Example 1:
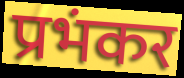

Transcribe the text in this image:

प्रभंकर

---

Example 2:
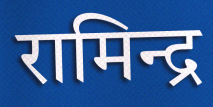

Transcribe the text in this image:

रामिन्द्र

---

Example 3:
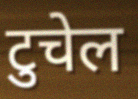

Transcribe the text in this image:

टुचेल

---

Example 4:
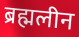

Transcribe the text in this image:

ब्रह्मलीन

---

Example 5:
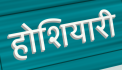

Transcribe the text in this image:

होशियारी